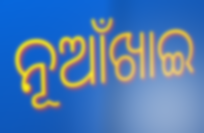
ନୂଆଁଖାଇ